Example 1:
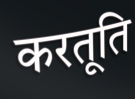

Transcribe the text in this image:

करतूति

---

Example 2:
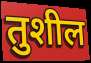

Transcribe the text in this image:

तुशील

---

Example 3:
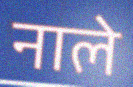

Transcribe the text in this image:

नाले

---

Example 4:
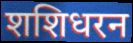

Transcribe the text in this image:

शशिधरन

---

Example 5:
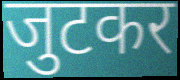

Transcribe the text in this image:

जुटकर